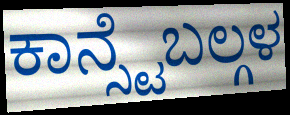
ಕಾನ್ಸ್ಟೆಬಲ್ಗಳ